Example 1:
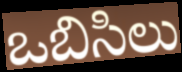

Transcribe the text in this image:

ఒబిసిలు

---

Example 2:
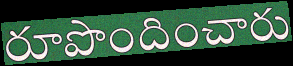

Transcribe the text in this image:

రూపొందించారు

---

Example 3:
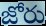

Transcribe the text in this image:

జోరు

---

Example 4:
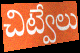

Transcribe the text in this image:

చిట్వేలు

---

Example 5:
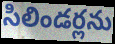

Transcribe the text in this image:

సిలిండర్లను